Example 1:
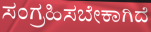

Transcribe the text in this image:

ಸಂಗ್ರಹಿಸಬೇಕಾಗಿದೆ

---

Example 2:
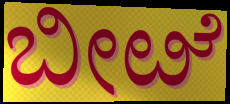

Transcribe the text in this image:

ಬೀೞೆ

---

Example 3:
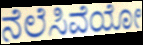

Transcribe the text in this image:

ನೆಲೆಸಿವೆಯೋ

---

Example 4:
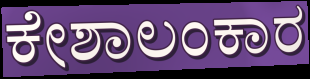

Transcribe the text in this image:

ಕೇಶಾಲಂಕಾರ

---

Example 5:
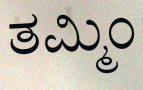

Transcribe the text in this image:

ತಮ್ಮಿಂ